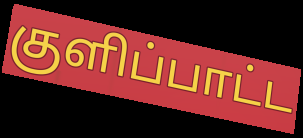
குளிப்பாட்ட